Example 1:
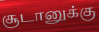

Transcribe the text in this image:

சூடானுக்கு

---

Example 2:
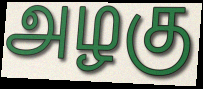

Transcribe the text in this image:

அழகு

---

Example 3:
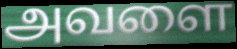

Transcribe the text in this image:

அவளை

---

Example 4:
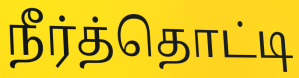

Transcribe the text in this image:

நீர்த்தொட்டி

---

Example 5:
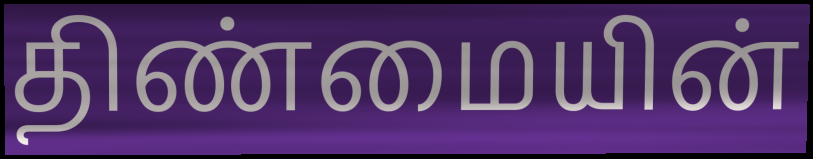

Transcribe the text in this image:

திண்மையின்